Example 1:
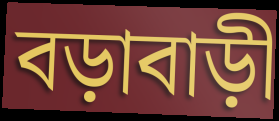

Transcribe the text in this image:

বড়াবাড়ী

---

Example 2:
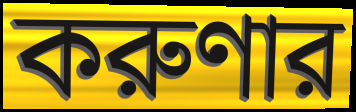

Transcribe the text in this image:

করুণার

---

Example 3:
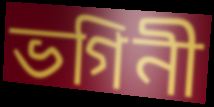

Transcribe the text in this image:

ভগিনী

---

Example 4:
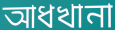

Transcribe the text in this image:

আধখানা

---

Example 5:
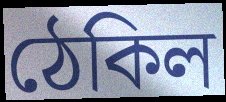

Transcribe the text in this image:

ঠেকিল